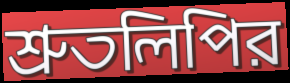
শ্রুতলিপির